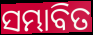
ସମ୍ଭାବିତ